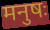
मनुषः